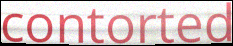
contorted